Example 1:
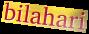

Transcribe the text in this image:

bilahari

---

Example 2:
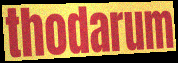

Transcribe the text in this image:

thodarum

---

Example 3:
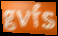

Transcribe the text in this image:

gvfs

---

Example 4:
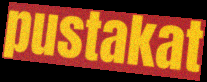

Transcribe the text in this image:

pustakat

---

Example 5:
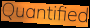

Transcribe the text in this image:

Quantified